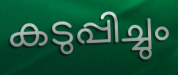
കടുപ്പിച്ചും